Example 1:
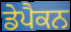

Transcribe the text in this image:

ਡੇਪੈਕਨ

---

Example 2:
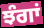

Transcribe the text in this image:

ਝੰਗਾਂ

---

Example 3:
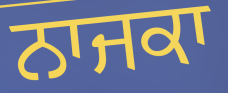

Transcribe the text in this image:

ਨਾਜਕਾ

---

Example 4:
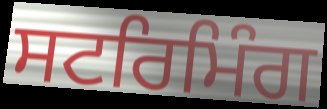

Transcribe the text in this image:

ਸਟਰਿਮਿੰਗ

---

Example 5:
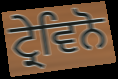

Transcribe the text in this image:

ਟ੍ਰੇਵਿਨੋ